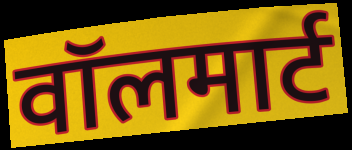
वॉलमार्ट